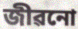
জীৱনো